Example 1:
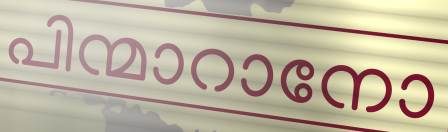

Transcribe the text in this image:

പിന്മാറാനോ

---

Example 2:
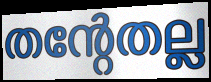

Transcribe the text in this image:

തന്റേതല്ല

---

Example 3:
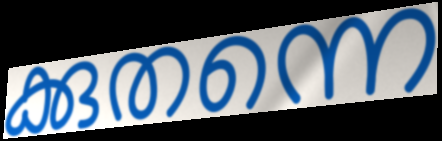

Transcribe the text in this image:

ക്കുതന്നെ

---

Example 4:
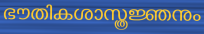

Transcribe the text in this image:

ഭൗതികശാസ്ത്രജ്ഞനും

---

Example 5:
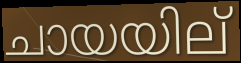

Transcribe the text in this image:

ചായയില്